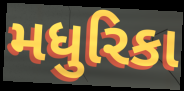
મધુરિકા